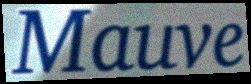
Mauve